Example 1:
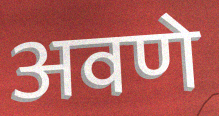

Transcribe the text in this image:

अवणे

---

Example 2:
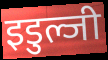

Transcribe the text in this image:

इडुल्जी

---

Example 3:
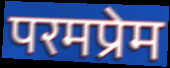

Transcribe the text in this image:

परमप्रेम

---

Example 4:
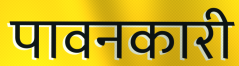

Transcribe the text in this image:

पावनकारी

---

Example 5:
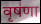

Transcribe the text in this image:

वृष॑णा